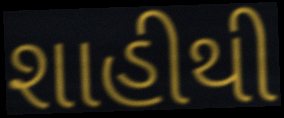
શાહીથી